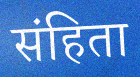
संहिता